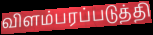
விளம்பரப்படுத்தி